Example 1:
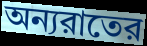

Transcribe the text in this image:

অন্যরাতের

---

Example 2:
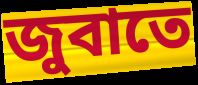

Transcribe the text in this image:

জুবাতে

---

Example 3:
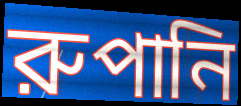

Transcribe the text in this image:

রুপানি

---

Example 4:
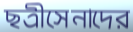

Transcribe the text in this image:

ছত্রীসেনাদের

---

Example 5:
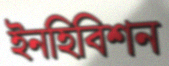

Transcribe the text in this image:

ইনহিবিশন